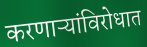
करणाऱ्यांविरोधात